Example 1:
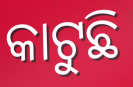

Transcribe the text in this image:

କାଟୁଛି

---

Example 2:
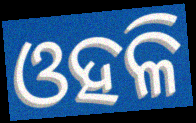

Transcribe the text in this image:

ଓହଳି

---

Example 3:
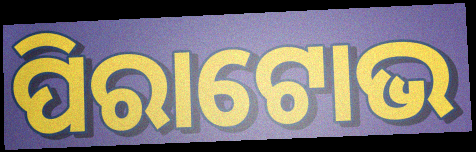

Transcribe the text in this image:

ପିରାଟୋଭ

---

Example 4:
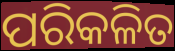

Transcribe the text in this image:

ପରିକଳିତ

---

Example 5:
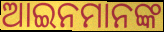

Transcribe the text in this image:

ଆଇନମାନଙ୍କ